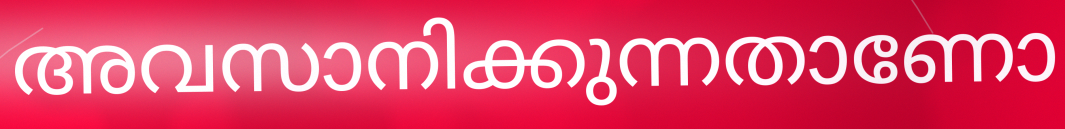
അവസാനിക്കുന്നതാണോ